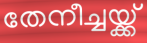
തേനീച്ചയ്ക്ക്